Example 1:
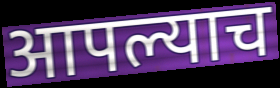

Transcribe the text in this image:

आपल्याच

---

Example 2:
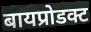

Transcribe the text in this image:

बायप्रोडक्ट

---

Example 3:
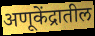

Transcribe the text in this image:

अणूकेंद्रातील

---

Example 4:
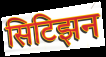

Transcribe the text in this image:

सिटिझन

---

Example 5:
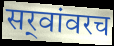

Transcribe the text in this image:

सर्वांवरच